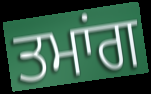
ਤਮਾਂਗ